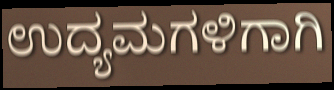
ಉದ್ಯಮಗಳಿಗಾಗಿ